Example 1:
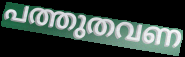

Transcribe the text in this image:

പത്തുതവണ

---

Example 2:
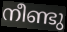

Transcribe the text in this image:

നീണ്ടു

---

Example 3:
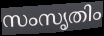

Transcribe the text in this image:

സംസൃതിം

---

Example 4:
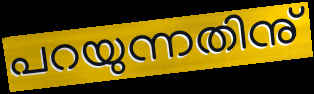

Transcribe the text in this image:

പറയുന്നതിനു്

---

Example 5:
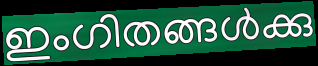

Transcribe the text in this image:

ഇംഗിതങ്ങൾക്കു